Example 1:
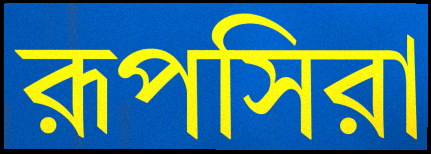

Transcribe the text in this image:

রূপসিরা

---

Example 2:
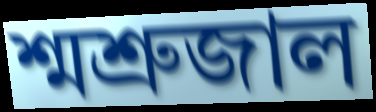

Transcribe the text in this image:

শ্মশ্রুজাল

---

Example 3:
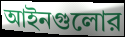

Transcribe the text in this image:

আইনগুলোর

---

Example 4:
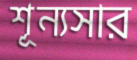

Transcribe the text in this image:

শূন্যসার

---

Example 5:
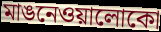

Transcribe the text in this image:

মাঙনেওয়ালোকো